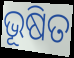
ଭୂଷିତ